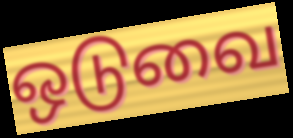
ஒடுவை